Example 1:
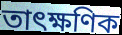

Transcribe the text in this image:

তাৎক্ষণিক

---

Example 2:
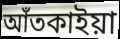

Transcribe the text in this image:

আঁতকাইয়া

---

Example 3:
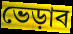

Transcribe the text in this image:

ভেড়াব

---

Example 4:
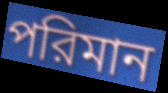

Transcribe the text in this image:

পরিমান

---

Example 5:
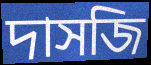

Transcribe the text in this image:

দাসজি